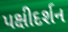
પક્ષીદર્શન